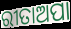
ରୀତାଅପା